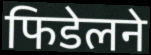
फिडेलने